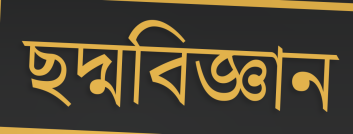
ছদ্মবিজ্ঞান